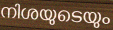
നിശയുടെയും